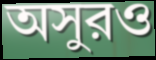
অসুরও